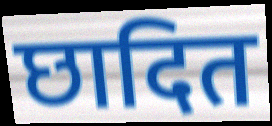
छादित